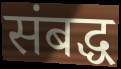
संबद्ध